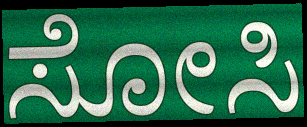
ಸೋಸಿ